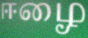
ஈழை